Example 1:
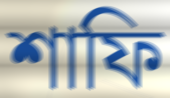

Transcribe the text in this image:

শাফি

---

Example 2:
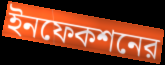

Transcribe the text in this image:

ইনফেকশনের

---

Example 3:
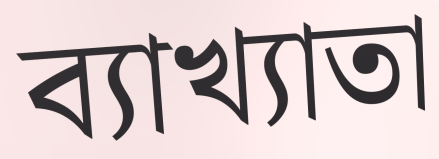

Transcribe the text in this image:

ব্যাখ্যাতা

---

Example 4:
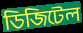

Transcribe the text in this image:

ডিজিটেল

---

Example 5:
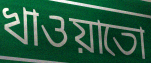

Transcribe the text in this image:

খাওয়াতো